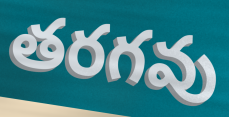
తరగవు